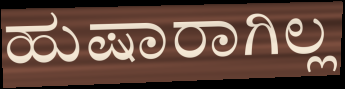
ಹುಷಾರಾಗಿಲ್ಲ